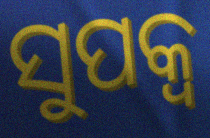
ସୁପକ୍ବ